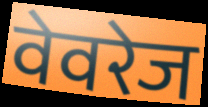
वेवरेज